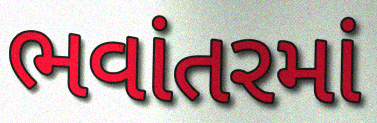
ભવાંતરમાં